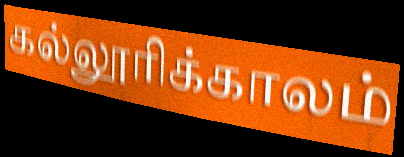
கல்லூரிக்காலம்